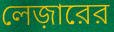
লেজ়ারের